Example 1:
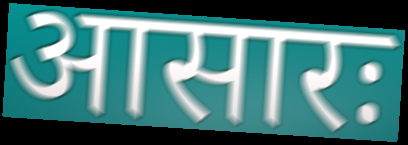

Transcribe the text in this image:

आसारः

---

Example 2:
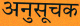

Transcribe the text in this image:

अनुसूचक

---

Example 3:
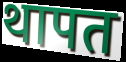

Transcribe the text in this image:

थापत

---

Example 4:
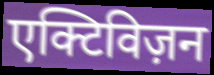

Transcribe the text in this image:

एक्टिविज़न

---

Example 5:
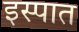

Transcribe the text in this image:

इस्पात